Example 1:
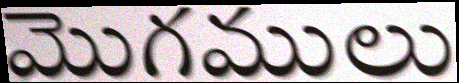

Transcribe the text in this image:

మొగములు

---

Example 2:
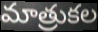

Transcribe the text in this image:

మాత్రుకల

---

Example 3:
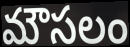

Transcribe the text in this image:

మౌసలం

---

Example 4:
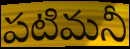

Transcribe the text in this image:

పటిమనీ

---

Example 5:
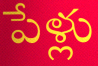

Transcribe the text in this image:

పేళ్లు